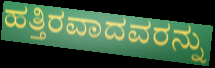
ಹತ್ತಿರವಾದವರನ್ನು